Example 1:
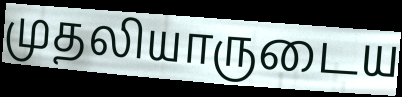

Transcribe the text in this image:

முதலியாருடைய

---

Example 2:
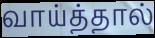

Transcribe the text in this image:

வாய்த்தால்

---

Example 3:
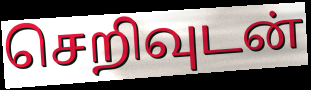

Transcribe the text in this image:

செறிவுடன்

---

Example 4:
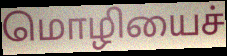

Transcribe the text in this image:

மொழியைச்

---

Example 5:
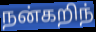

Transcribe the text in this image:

நன்கறிந்